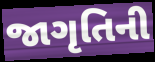
જાગૃતિની